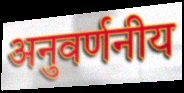
अनुवर्णनीय